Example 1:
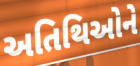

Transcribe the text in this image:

અતિથિઓને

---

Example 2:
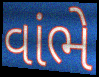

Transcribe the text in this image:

વાંભે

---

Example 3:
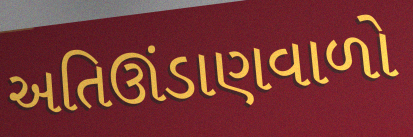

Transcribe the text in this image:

અતિઊંડાણવાળો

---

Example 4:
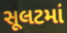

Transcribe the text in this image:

સૂલટમાં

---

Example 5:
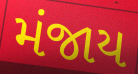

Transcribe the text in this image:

મંજાય